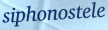
siphonostele